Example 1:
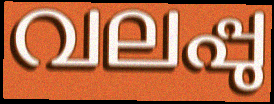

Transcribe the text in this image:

വലപ്പു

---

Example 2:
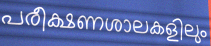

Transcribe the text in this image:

പരീക്ഷണശാലകളിലും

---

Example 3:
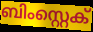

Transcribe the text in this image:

ബിംസ്റ്റെക്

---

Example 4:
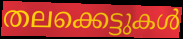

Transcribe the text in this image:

തലക്കെട്ടുകൾ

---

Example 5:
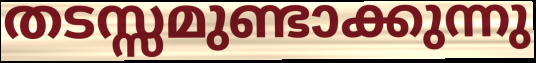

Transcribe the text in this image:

തടസ്സമുണ്ടാക്കുന്നു